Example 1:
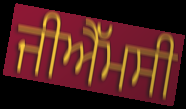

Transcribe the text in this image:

ਜੀਐੱਮਸੀ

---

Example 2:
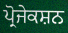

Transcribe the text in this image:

ਪ੍ਰੋਜੇਕਸ਼ਨ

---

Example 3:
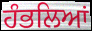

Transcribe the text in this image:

ਹੰਭਲਿਆਂ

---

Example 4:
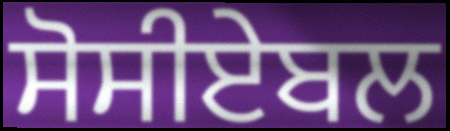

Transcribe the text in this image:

ਸੋਸੀਏਬਲ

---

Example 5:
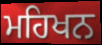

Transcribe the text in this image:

ਮਹਿਖਨ